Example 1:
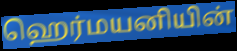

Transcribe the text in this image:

ஹெர்மயனியின்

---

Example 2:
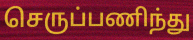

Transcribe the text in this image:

செருப்பணிந்து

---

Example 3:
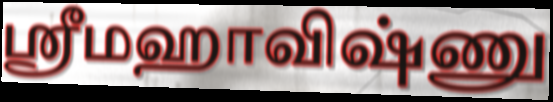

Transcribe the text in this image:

ஸ்ரீமஹாவிஷ்ணு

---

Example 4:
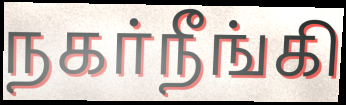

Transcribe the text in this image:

நகர்நீங்கி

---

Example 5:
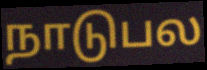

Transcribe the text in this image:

நாடுபல